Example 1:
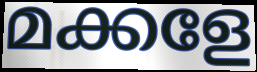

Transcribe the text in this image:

മക്കളേ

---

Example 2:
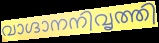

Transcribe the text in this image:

വാഗ്ദാനനിവൃത്തി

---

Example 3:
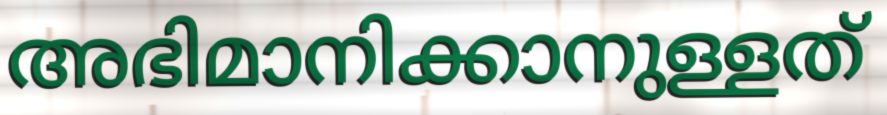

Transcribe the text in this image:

അഭിമാനിക്കാനുള്ളത്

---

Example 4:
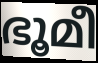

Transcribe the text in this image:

ഭൂമീ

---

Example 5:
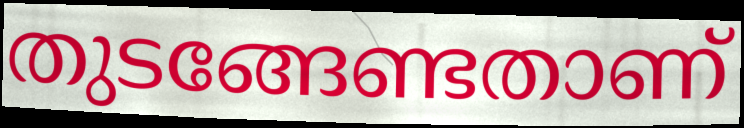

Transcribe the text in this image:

തുടങ്ങേണ്ടതാണ്